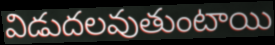
విడుదలవుతుంటాయి